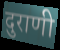
दुराणी